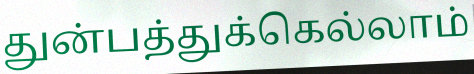
துன்பத்துக்கெல்லாம்